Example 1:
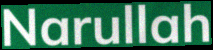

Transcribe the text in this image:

Narullah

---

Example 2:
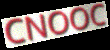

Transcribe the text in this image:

CNOOC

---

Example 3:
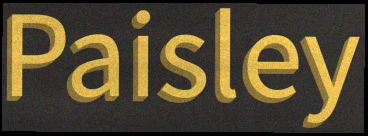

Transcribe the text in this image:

Paisley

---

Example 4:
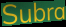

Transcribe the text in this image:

Subra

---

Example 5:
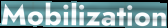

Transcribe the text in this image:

Mobilization